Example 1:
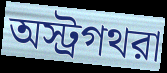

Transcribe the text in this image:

অস্ট্রগথরা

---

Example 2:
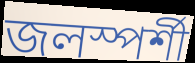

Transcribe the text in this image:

জলস্পর্শী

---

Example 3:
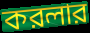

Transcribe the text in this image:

করলার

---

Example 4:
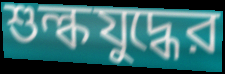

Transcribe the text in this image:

শুল্কযুদ্ধের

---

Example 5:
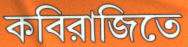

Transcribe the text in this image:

কবিরাজিতে